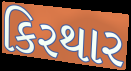
કિરથાર